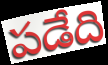
పడేది